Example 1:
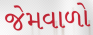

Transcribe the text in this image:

જેમવાળો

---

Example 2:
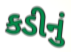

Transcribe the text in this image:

કડીનું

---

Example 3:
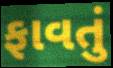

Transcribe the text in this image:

ફાવતું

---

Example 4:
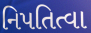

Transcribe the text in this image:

નિપતિત્વા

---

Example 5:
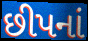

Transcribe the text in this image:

છીપનાં